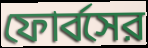
ফোর্বসের